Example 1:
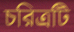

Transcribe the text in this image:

চরিত্রটি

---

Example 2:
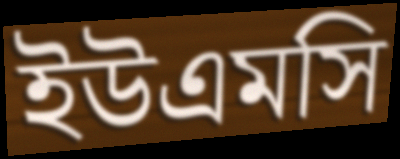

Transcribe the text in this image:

ইউএমসি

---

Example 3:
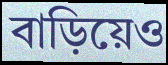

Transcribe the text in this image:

বাড়িয়েও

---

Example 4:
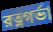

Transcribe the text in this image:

রত্নগর্ভা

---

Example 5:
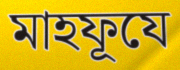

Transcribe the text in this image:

মাহফূযে